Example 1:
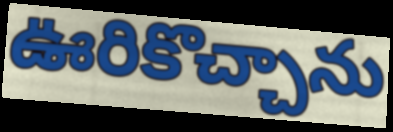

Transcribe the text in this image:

ఊరికొచ్చాను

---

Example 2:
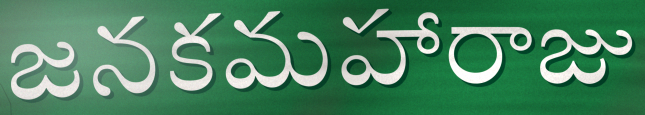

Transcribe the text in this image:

జనకమహారాజు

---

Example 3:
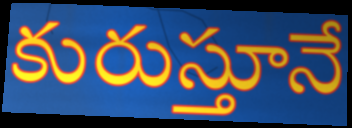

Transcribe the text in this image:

కురుస్తూనే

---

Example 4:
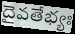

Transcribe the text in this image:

దైవతేభ్యః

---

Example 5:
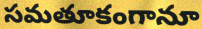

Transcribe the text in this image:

సమతూకంగానూ